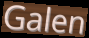
Galen